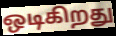
ஒடிகிறது